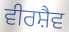
ਵੀਰਸ਼ੈਵ